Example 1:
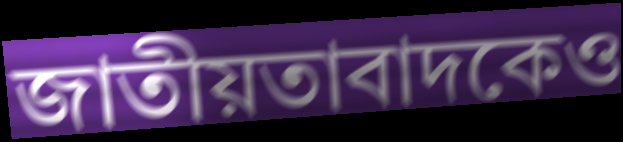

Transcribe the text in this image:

জাতীয়তাবাদকেও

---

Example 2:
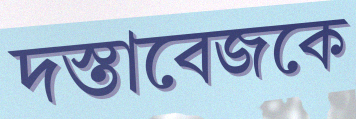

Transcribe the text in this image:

দস্তাবেজকে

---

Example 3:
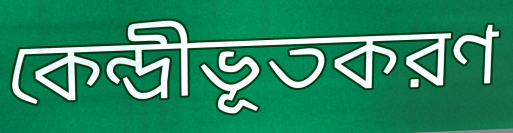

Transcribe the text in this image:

কেন্দ্রীভূতকরণ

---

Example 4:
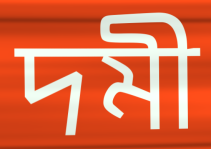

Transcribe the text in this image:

দমী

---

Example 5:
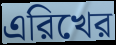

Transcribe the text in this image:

এরিখের